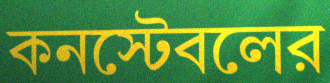
কনস্টেবলের